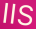
IIS